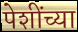
पेशींच्या